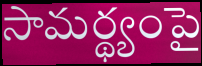
సామర్థ్యంపై